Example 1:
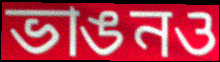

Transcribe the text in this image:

ভাঙনও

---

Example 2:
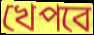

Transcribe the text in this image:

খেপবে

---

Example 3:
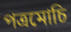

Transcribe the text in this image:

পত্রমোচি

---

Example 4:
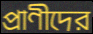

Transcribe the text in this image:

প্রাণীদের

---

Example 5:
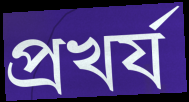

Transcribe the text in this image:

প্রখর্য